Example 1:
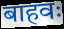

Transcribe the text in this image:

बाहवः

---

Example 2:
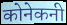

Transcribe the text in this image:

कोनेकनी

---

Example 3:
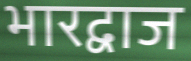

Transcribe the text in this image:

भारद्वाज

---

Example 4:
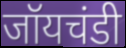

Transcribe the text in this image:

जॉयचंडी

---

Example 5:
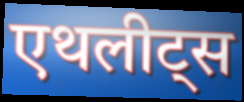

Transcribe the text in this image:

एथलीट्स